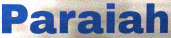
Paraiah